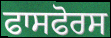
ਫਾਸਫੋਰਸ